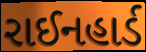
રાઈનહાર્ડ